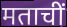
मताचीं